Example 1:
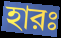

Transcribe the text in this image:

হারঃ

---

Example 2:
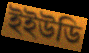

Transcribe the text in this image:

ইইউডি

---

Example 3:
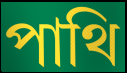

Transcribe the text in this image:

পাথি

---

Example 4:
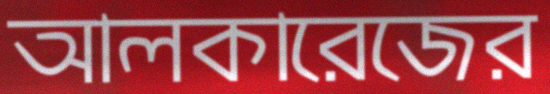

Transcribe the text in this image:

আলকারেজের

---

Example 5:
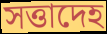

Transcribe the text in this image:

সত্তাদেহ